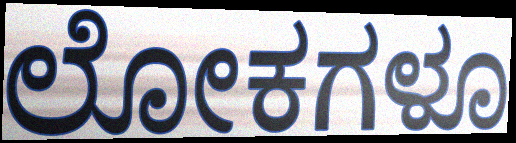
ಲೋಕಗಳೂ